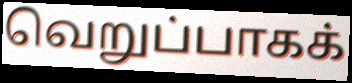
வெறுப்பாகக்